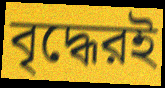
বৃদ্ধেরই